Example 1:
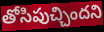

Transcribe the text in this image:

తోసిపుచ్చిందని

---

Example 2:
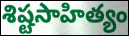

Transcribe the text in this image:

శిష్టసాహిత్యం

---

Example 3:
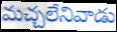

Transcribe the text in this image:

మచ్చలేనివాడు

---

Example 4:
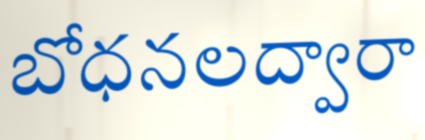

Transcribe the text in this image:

బోధనలద్వారా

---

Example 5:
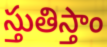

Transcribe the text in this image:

స్తుతిస్తాం